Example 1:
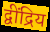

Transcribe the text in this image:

द्वींद्रिय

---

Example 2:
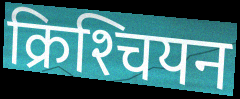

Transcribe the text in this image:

क्रिश्चियन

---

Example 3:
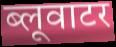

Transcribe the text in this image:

ब्लूवाटर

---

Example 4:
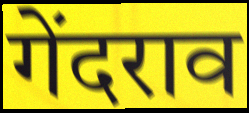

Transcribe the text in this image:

गेंदराव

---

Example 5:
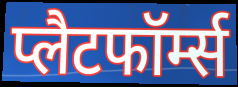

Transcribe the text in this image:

प्लैटफॉर्म्स